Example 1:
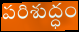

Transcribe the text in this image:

పరిశుద్ధం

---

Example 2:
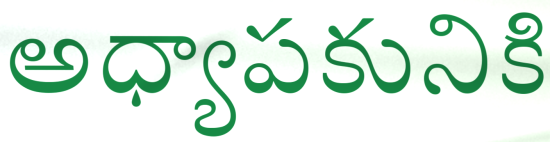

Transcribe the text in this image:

అధ్యాపకునికి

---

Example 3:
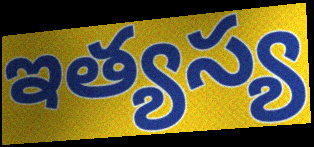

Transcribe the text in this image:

ఇత్యస్య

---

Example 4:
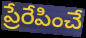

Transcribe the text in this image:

ప్రేరేపించే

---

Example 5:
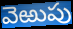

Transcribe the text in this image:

వెఱుపు